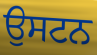
ਉਸਟਨ